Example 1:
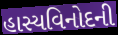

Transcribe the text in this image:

હાસ્યવિનોદની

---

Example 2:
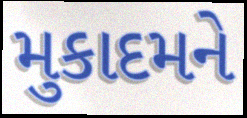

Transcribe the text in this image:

મુકાદમને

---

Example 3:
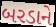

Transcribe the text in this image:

બરડાને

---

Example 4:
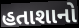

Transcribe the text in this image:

હતાશાનો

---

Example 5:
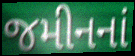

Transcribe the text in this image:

જમીનનાં